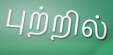
புற்றில்